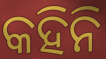
କହିନି